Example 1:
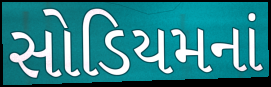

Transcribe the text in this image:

સોડિયમનાં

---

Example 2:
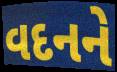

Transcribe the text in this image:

વદનને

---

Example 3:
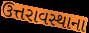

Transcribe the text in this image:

ઉત્તરાવસ્થાના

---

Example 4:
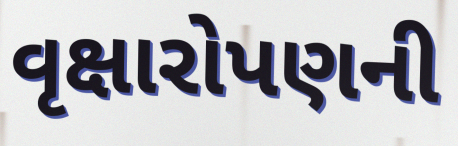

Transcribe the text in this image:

વૃક્ષારોપણની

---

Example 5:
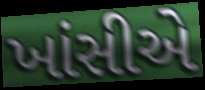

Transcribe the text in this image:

ખાંસીએ